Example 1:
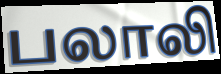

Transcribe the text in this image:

பலாலி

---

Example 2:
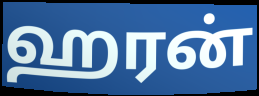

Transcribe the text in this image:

ஹரன்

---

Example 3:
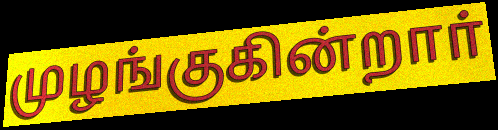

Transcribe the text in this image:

முழங்குகின்றார்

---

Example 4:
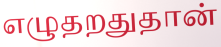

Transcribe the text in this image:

எழுதறதுதான்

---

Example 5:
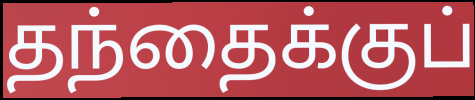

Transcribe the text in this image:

தந்தைக்குப்